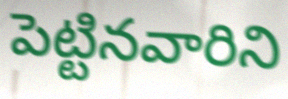
పెట్టినవారిని